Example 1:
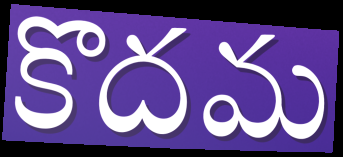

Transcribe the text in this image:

కొదమ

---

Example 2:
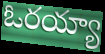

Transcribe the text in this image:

ఓరయ్యా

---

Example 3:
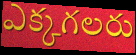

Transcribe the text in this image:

ఎక్కగలరు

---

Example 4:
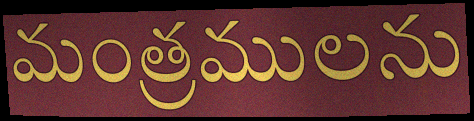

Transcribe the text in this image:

మంత్రములను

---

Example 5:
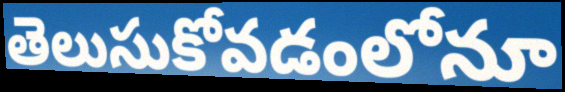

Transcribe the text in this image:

తెలుసుకోవడంలోనూ